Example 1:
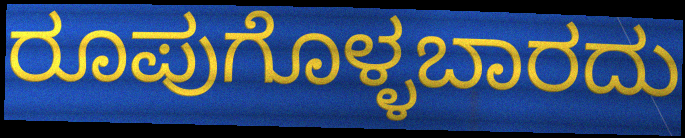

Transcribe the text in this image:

ರೂಪುಗೊಳ್ಳಬಾರದು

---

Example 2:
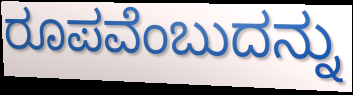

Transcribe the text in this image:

ರೂಪವೆಂಬುದನ್ನು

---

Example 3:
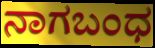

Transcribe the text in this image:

ನಾಗಬಂಧ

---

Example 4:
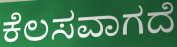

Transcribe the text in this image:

ಕೆಲಸವಾಗದೆ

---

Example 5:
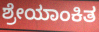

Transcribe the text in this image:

ಶ್ರೇಯಾಂಕಿತ